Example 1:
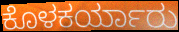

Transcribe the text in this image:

ಕೊಳಕರ್ಯಾರು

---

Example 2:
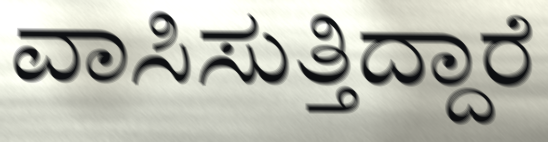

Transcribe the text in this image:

ವಾಸಿಸುತ್ತಿದ್ದಾರೆ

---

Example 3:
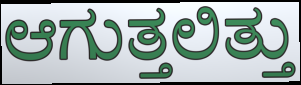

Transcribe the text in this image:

ಆಗುತ್ತಲಿತ್ತು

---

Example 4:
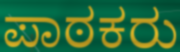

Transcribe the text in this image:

ಪಾಠಕರು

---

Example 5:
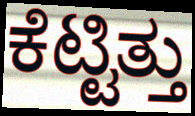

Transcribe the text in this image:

ಕೆಟ್ಟಿತ್ತು